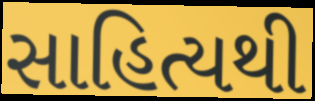
સાહિત્યથી